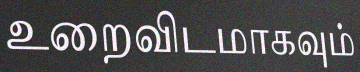
உறைவிடமாகவும்